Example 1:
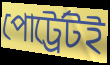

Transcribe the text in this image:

পোর্ট্রেটই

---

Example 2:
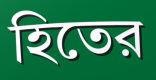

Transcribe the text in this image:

হিতের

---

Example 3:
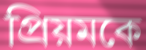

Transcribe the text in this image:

প্রিয়মকে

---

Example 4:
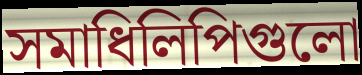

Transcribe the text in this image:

সমাধিলিপিগুলো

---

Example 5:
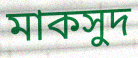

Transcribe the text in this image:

মাকসুদ